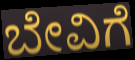
ಬೇವಿಗೆ